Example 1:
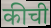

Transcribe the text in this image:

कीची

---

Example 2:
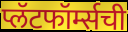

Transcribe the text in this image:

प्लॅटफॉर्म्सची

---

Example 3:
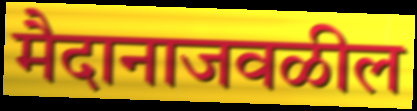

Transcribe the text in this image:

मैदानाजवळील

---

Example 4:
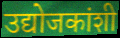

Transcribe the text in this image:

उद्योजकांशी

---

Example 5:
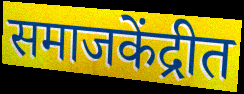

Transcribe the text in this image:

समाजकेंद्रीत